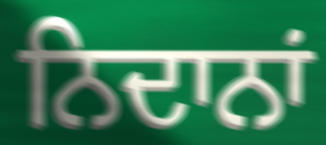
ਨਿਦਾਨਾਂ